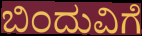
ಬಿಂದುವಿಗೆ